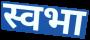
स्वभा